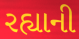
રહ્યાની